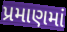
પ્રમાણમાં